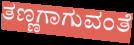
ತಣ್ಣಗಾಗುವಂತೆ